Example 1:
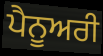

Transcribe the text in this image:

ਪੈਨੂਅਰੀ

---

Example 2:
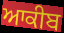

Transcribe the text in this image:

ਆਕੀਬ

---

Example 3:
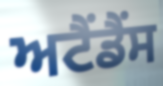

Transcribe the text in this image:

ਅਟੈਂਡੈਂਸ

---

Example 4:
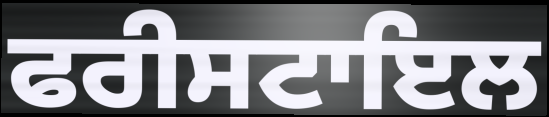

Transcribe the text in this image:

ਫਰੀਸਟਾਇਲ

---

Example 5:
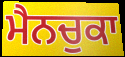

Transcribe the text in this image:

ਮੈਨਚੁਕਾ